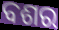
ବଶର